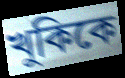
খুকিকে